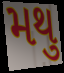
મથુ